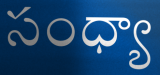
సంధ్యా